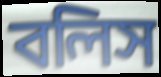
বলিস